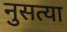
नुसत्या